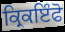
ਕ੍ਰਿਕਇੰਫੋ